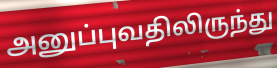
அனுப்புவதிலிருந்து